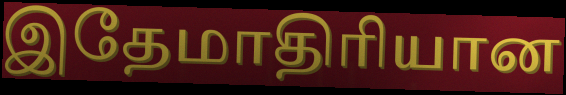
இதேமாதிரியான